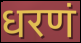
धरणं